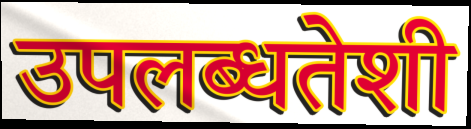
उपलब्धतेशी